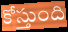
కోస్తుంది